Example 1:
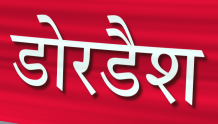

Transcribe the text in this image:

डोरडैश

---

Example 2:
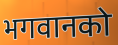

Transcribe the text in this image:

भगवानको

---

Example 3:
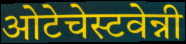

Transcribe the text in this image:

ओटेचेस्टवेन्नी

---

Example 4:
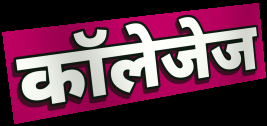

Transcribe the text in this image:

कॉलेजेज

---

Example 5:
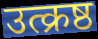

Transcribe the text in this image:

उत्क्रष्ठ